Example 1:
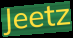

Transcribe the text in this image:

Jeetz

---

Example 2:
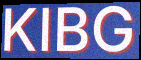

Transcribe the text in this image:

KIBG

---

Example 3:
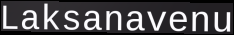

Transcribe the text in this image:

Laksanavenu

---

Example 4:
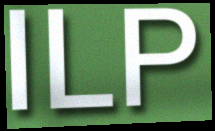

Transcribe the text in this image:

ILP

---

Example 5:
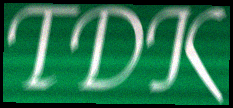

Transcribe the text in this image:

TDK